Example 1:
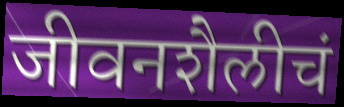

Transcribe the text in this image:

जीवनशैलीचं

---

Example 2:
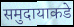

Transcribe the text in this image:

समुदायाकडे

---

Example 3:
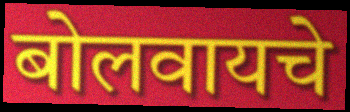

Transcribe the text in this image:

बोलवायचे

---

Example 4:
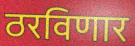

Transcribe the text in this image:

ठरविणार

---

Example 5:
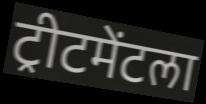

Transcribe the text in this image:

ट्रीटमेंटला